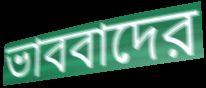
ভাববাদের